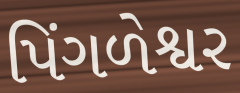
પિંગળેશ્વર